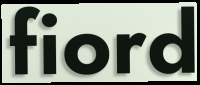
fiord